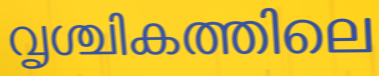
വൃശ്ചികത്തിലെ